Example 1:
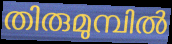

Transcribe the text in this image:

തിരുമുമ്പിൽ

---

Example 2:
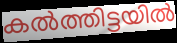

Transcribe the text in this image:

കൽത്തിട്ടയിൽ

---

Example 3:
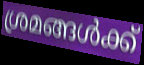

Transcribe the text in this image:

ശ്രമങ്ങൾക്ക്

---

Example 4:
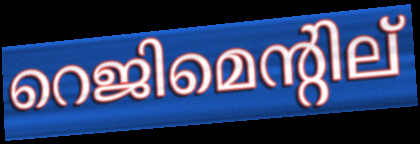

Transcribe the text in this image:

റെജിമെന്റില്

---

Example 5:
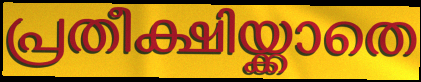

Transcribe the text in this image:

പ്രതീക്ഷിയ്ക്കാതെ